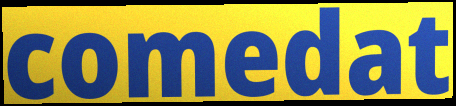
comedat